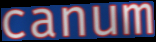
canum